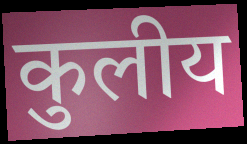
कुलीय